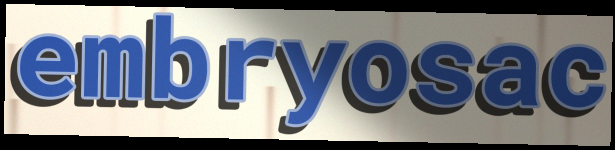
embryosac